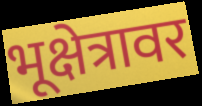
भूक्षेत्रावर